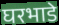
घरभाडे